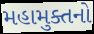
મહામુક્તનો